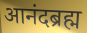
आनंदब्रह्म